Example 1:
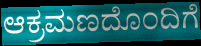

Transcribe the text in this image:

ಆಕ್ರಮಣದೊಂದಿಗೆ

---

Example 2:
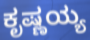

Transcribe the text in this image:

ಕೃಷ್ಣಯ್ಯ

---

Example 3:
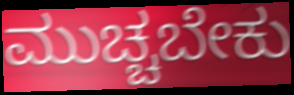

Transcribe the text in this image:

ಮುಚ್ಚಬೇಕು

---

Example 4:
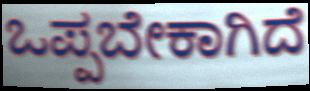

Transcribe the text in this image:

ಒಪ್ಪಬೇಕಾಗಿದೆ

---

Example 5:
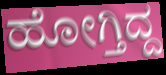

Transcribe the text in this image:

ಹೋಗ್ತಿದ್ದ